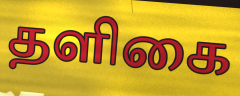
தளிகை